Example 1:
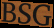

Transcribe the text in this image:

BSG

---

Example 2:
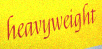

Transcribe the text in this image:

heavyweight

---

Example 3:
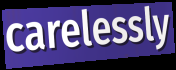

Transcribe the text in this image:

carelessly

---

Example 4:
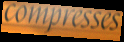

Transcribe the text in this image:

compresses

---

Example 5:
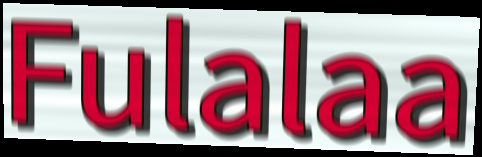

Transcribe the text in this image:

Fulalaa